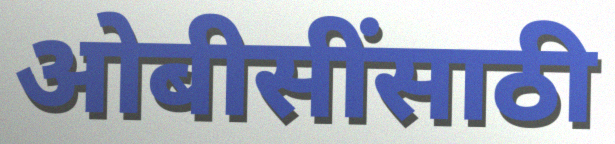
ओबीसींसाठी